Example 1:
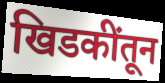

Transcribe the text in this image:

खिडकींतून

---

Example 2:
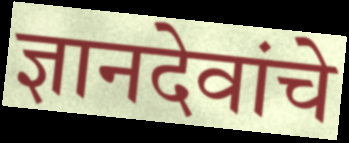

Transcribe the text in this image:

ज्ञानदेवांचे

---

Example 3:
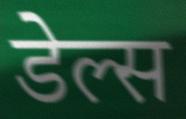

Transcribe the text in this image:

डेल्स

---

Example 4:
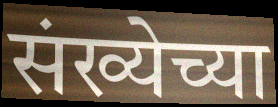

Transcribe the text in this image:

संख्येच्या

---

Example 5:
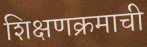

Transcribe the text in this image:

शिक्षणक्रमाची